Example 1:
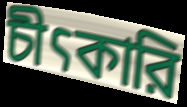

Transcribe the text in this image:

চীৎকারি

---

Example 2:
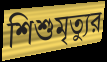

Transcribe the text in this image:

শিশুমৃত্যুর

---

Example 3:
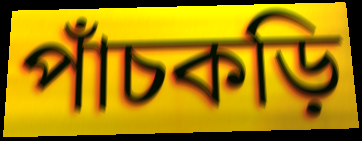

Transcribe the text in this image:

পাঁচকড়ি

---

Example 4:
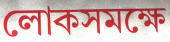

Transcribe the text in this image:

লোকসমক্ষে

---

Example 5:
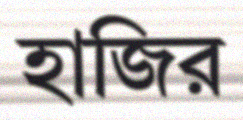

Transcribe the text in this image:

হাজির